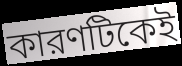
কারণটিকেই